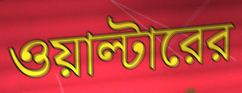
ওয়াল্টারের